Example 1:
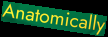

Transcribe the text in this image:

Anatomically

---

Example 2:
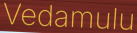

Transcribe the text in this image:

Vedamulu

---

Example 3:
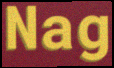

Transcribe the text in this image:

Nag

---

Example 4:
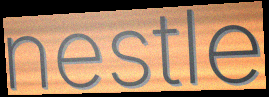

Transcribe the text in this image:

nestle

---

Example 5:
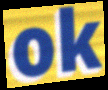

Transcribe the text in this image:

ok